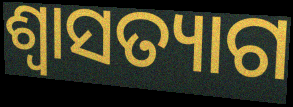
ଶ୍ବାସତ୍ୟାଗ